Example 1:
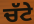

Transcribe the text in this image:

ਚੱਟੇ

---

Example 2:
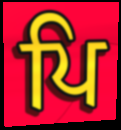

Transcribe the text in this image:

ਪਿ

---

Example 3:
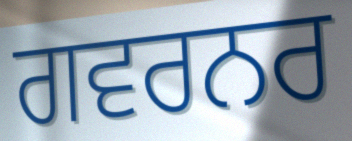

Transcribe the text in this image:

ਗਵਰਨਰ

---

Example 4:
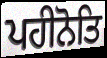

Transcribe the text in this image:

ਪਹੀਨੋਤਿ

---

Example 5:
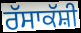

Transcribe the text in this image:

ਰੱਸਾਕੱਸ਼ੀ